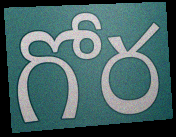
గోర